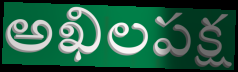
అఖిలపక్ష